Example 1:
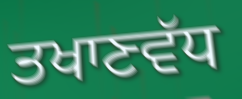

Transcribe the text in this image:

ਤਖਾਣਵੱਧ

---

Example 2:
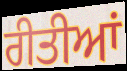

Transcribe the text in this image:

ਰੀਤੀਆਂ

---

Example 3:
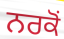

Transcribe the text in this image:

ਨਰਕੋਂ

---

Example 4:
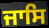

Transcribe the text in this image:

ਜਾਸਿ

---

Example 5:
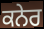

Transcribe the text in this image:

ਕਨੇਰ